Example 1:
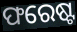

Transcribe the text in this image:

ଫରେଷ୍ଟ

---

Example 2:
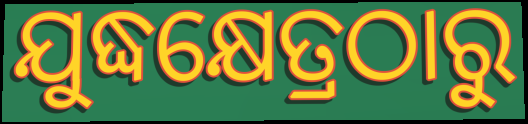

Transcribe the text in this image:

ଯୁଦ୍ଧକ୍ଷେତ୍ରଠାରୁ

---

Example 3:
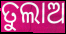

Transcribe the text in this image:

ତୁଲାଅ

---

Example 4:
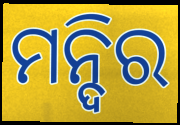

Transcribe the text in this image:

ମନ୍ଦିର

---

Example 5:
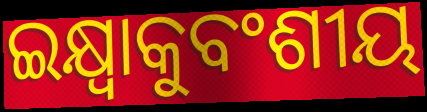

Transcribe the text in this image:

ଇକ୍ଷ୍ୱାକୁବଂଶୀୟ